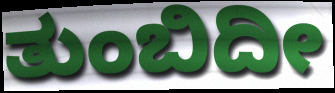
ತುಂಬಿದೀ